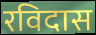
रविदास